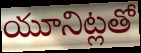
యూనిట్లతో